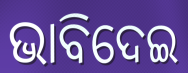
ଭାବିଦେଇ